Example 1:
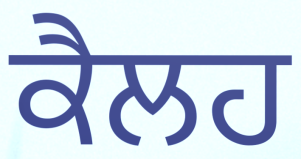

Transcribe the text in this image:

ਕੈਲਹ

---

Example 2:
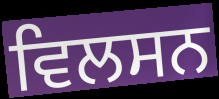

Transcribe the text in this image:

ਵਿਲਸਨ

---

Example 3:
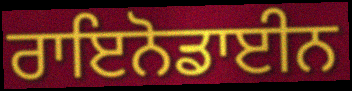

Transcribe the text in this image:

ਰਾਇਨੋਡਾਈਨ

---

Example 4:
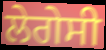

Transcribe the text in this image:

ਲੇਗੇਸੀ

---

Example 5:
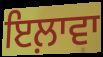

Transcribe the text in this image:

ਇਲ਼ਾਵਾ